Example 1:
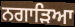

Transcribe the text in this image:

ਨਗਾੜਿਆ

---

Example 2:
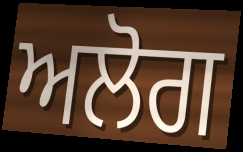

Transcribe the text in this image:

ਅਲੋਗ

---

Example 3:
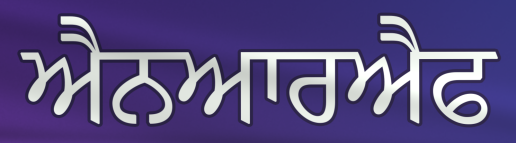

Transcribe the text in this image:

ਐਨਆਰਐਫ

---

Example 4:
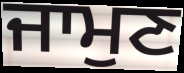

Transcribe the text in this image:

ਜਾਮੁਣ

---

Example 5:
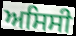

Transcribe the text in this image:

ਅਸਿਸੀ